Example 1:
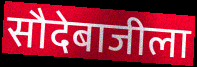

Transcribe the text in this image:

सौदेबाजीला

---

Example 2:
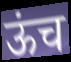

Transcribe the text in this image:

ऊंच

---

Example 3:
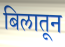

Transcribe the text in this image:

बिलातून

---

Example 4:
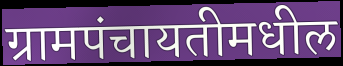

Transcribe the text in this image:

ग्रामपंचायतीमधील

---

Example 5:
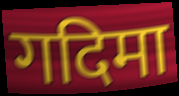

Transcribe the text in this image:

गदिमा